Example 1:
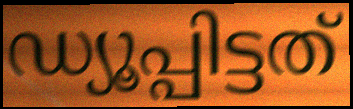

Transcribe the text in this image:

ഡ്യൂപ്പിട്ടത്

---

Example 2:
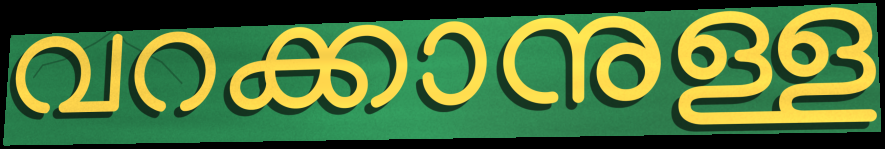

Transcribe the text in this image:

വറക്കാനുള്ള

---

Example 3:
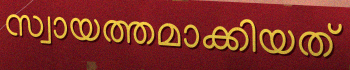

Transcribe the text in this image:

സ്വായത്തമാക്കിയത്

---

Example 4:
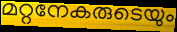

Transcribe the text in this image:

മറ്റനേകരുടെയും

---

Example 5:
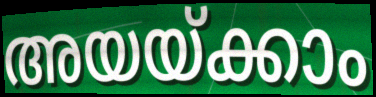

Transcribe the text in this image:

അയയ്ക്കാം